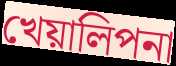
খেয়ালিপনা